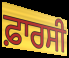
ਫ਼ਾਰਸੀ